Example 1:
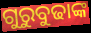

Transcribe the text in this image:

ଗୁରୁବୁଢାଙ୍କ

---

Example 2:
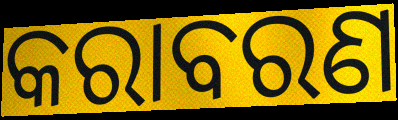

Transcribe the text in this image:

କରାବରଣ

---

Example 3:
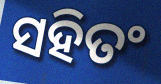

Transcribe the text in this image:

ସହିତଂ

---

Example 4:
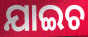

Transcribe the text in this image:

ଯାଇଚ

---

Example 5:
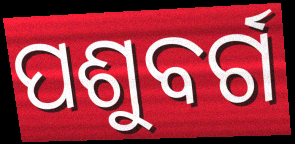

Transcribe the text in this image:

ପଶୁବର୍ଗ